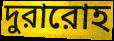
দুরারোহ